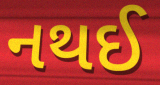
નથઈ